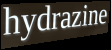
hydrazine